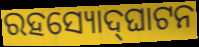
ରହସ୍ୟୋଦ୍‍ଘାଟନ